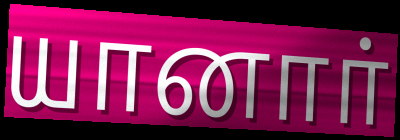
யானார்